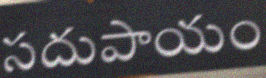
సదుపాయం